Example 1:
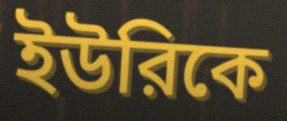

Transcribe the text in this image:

ইউরিকে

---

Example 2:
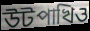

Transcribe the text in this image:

উটপাখিও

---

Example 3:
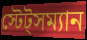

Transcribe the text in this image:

স্টেট্সম্যান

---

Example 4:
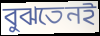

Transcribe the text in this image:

বুঝতেনই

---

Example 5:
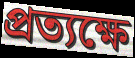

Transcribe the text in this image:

প্রত্যক্ষে